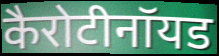
कैरोटीनॉयड